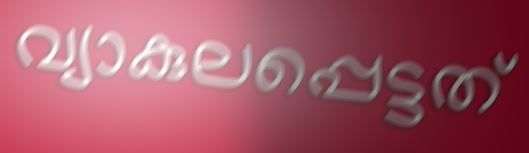
വ്യാകുലപ്പെട്ടത്